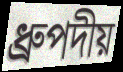
ধ্রুপদীয়